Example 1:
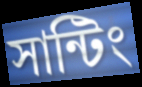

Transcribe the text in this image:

সান্টিং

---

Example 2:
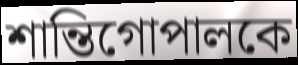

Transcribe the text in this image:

শান্তিগোপালকে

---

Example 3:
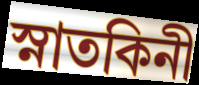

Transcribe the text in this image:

স্নাতকিনী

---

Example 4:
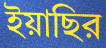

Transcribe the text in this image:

ইয়াছির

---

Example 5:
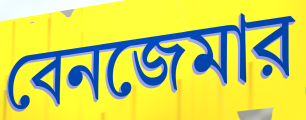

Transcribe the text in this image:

বেনজেমার